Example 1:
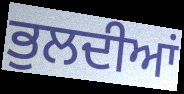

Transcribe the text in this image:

ਭੁਲਦੀਆਂ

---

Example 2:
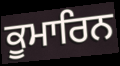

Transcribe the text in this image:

ਕੂਮਾਰਿਨ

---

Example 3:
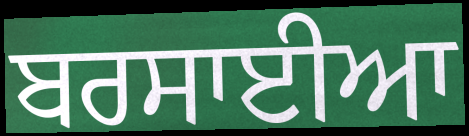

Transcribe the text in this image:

ਬਰਸਾਈਆ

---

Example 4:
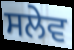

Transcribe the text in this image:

ਸਲੇਵ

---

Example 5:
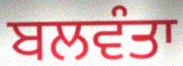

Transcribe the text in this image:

ਬਲਵੰਤਾ